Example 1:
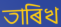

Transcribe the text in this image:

তাৰিখ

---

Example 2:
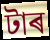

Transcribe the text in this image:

টাৰ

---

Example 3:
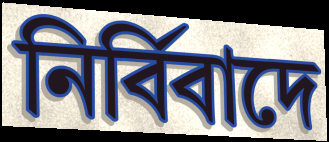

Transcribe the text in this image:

নিৰ্বিবাদে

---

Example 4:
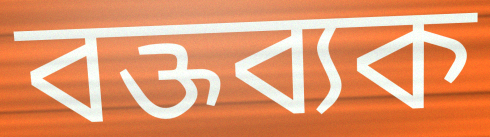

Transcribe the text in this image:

বক্তব্যক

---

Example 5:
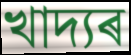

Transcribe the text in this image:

খাদ্যৰ